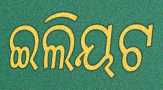
ଇଲିୟଟ